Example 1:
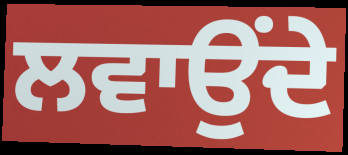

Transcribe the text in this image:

ਲਵਾਉਂਦੇ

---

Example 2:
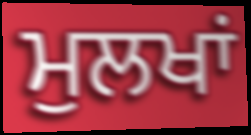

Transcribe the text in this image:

ਮੁਲਖਾਂ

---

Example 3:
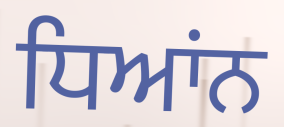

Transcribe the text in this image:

ਧਿਆਂਨ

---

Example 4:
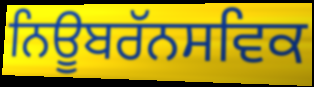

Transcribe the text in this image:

ਨਿਊਬਰੱਨਸਵਿਕ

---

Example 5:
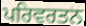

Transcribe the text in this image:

ਪਰਿਵਰਤਨ